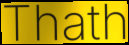
Thath